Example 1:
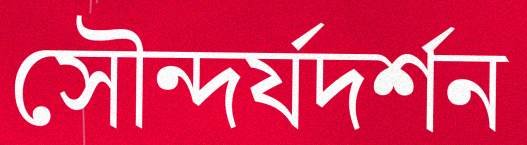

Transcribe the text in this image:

সৌন্দর্যদর্শন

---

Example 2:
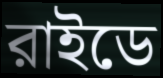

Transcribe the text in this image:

রাইডে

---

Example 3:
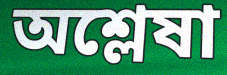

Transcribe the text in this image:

অশ্লেষা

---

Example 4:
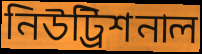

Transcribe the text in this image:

নিউট্রিশনাল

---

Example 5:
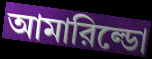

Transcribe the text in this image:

আমারিল্ডো